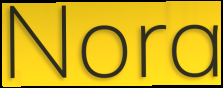
Nora